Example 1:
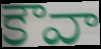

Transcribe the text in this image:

కౌవా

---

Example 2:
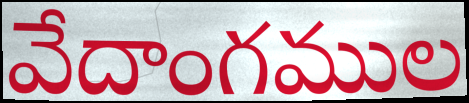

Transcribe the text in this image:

వేదాంగముల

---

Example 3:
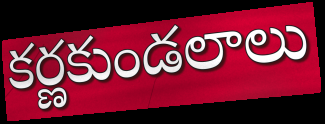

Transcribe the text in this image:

కర్ణకుండలాలు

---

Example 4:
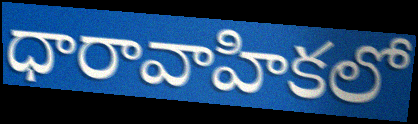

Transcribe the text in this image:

ధారావాహికలో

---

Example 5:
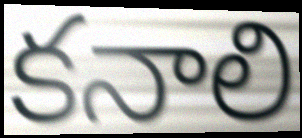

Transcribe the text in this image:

కనాలి